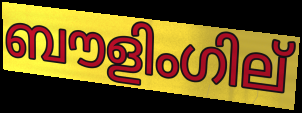
ബൗളിംഗില്